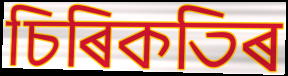
চিৰিকতিৰ